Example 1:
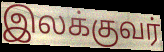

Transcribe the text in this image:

இலக்குவர்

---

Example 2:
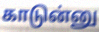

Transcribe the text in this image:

காடுன்னு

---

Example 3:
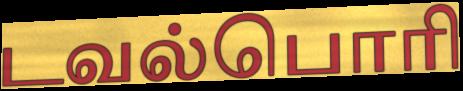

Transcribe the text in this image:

டவல்பொரி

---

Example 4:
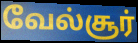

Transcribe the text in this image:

வேல்சூர்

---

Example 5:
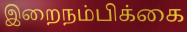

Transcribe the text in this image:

இறைநம்பிக்கை